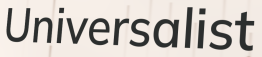
Universalist